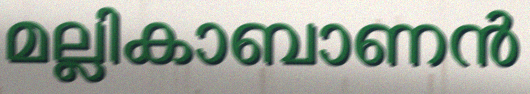
മല്ലികാബാണൻ